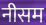
नीसम